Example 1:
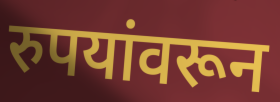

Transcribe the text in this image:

रुपयांवरून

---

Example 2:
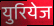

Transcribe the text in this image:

युरियेज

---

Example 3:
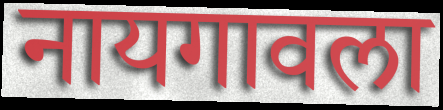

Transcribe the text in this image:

नायगावला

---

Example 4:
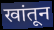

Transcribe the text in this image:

खांतून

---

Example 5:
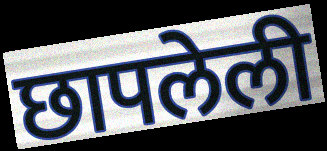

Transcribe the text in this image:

छापलेली